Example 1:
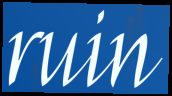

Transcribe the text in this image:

ruin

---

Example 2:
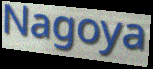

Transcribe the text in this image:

Nagoya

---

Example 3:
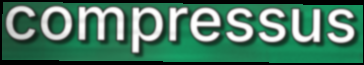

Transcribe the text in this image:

compressus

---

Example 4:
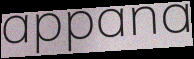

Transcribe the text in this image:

appana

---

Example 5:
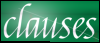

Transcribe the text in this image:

clauses